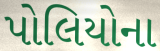
પોલિયોના